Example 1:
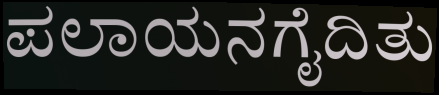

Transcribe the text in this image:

ಪಲಾಯನಗೈದಿತು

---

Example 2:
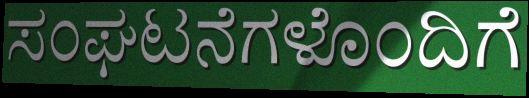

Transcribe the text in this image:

ಸಂಘಟನೆಗಳೊಂದಿಗೆ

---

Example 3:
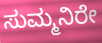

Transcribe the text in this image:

ಸುಮ್ಮನಿರೇ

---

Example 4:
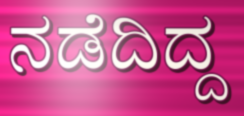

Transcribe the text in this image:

ನಡೆದಿದ್ದ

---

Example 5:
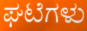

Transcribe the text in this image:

ಘಟೆಗಳು